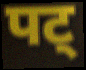
पट्